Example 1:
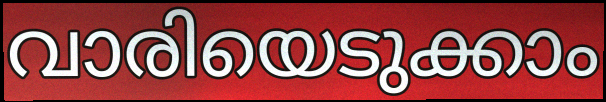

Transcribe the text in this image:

വാരിയെടുക്കാം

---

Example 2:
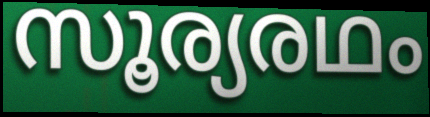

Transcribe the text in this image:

സൂര്യരഥം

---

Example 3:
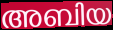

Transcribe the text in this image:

അബിയ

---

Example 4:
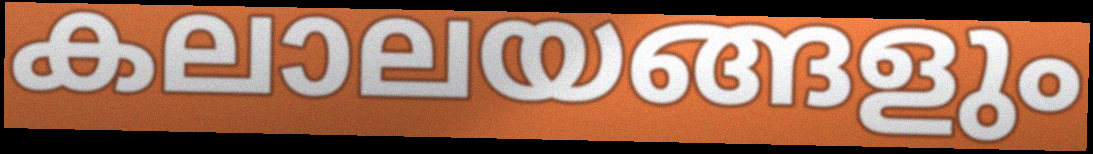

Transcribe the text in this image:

കലാലയങ്ങളും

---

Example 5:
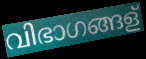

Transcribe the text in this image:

വിഭാഗങ്ങള്